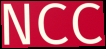
NCC